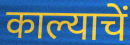
काल्याचें